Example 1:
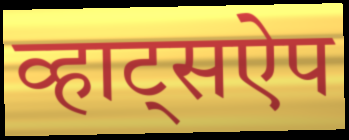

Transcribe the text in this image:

व्‍हाट्सऐप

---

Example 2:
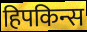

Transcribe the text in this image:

हिपकिन्स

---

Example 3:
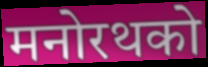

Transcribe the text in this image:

मनोरथको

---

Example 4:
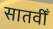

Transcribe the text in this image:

सातवीँ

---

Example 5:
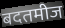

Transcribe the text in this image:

बदतमीज